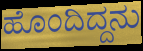
ಹೊಂದಿದ್ದನು